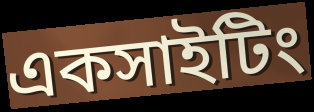
একসাইটিং